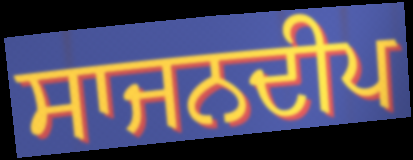
ਸਾਜਨਦੀਪ